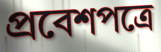
প্রবেশপত্রে